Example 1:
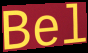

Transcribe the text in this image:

Bel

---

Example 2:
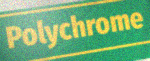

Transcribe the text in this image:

Polychrome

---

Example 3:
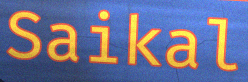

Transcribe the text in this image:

Saikal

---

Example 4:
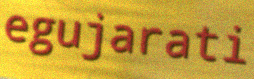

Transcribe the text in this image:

egujarati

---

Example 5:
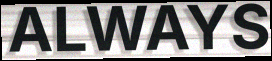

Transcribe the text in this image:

ALWAYS